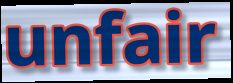
unfair